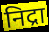
निद्रा